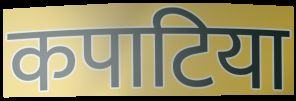
कपाटिया